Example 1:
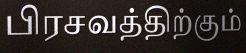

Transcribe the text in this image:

பிரசவத்திற்கும்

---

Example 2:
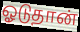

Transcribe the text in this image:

ஓடுதான்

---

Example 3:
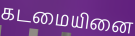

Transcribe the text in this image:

கடமையினை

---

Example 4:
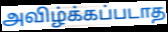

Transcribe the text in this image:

அவிழ்க்கப்படாத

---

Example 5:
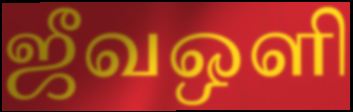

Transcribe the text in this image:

ஜீவஒளி